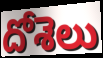
దోశెలు